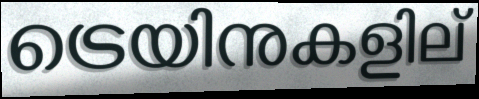
ട്രെയിനുകളില്